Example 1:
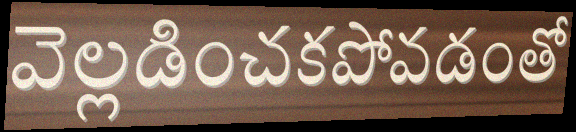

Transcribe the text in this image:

వెల్లడించకపోవడంతో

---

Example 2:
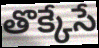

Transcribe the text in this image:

తొక్కేసే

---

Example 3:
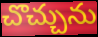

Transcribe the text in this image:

చొచ్చును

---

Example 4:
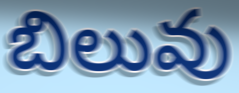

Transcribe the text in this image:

బిలువు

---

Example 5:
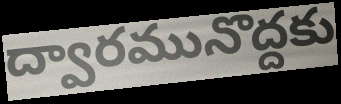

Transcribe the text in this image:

ద్వారమునొద్దకు